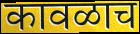
कावळाच